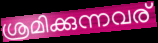
ശ്രമിക്കുന്നവര്